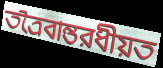
তত্রৈবান্তরধীয়ত